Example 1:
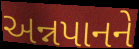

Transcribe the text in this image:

અન્નપાનને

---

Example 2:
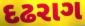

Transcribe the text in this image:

દઢરાગ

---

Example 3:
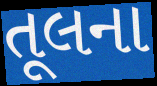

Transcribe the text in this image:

તૂલના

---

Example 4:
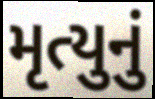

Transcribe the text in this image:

મૃત્યુનું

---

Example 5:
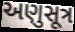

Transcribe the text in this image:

અણુસૂત્ર